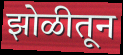
झोळीतून